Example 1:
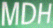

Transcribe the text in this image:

MDH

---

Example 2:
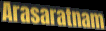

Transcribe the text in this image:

Arasaratnam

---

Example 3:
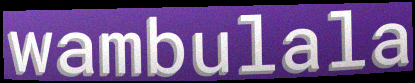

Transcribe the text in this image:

wambulala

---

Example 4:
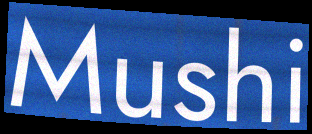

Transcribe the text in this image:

Mushi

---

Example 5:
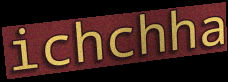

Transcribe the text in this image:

ichchha